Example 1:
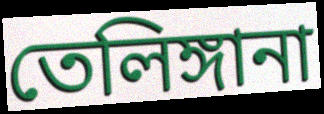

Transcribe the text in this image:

তেলিঙ্গানা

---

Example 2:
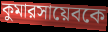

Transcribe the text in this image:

কুমারসায়েবকে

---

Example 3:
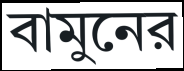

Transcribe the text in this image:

বামুনের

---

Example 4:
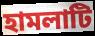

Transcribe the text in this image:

হামলাটি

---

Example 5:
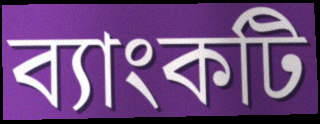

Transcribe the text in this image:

ব্যাংকটি